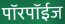
पॉरपॉईज